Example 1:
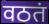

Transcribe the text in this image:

वठतं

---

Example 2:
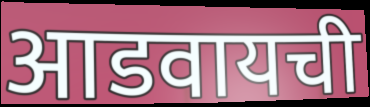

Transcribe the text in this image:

आडवायची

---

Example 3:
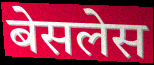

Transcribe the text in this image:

बेसलेस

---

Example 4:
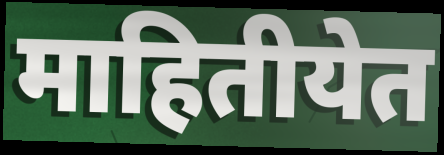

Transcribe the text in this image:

माहितीयेत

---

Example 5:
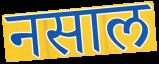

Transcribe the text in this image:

नसाल